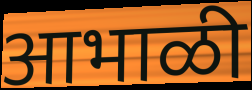
आभाळी